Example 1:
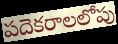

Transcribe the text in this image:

పదెకరాలలోపు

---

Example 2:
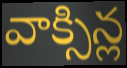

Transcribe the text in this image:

వాక్సిన్ల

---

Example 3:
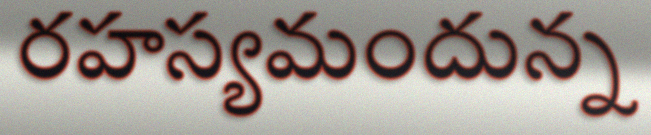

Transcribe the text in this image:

రహస్యమందున్న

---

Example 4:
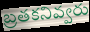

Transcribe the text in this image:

బ్రతకనివ్వరు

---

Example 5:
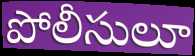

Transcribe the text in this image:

పోలీసులూ